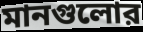
মানগুলোর